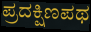
ಪ್ರದಕ್ಷಿಣಪಥ